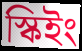
স্কিইং